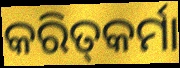
କରିତ୍‍କର୍ମା